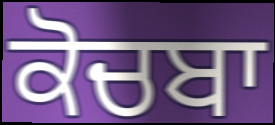
ਕੋਚਬਾ